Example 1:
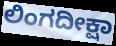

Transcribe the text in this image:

ಲಿಂಗದೀಕ್ಷಾ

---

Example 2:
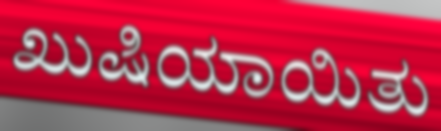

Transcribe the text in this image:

ಖುಷಿಯಾಯಿತು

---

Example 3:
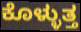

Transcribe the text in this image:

ಕೊಳ್ಳುತ್ತ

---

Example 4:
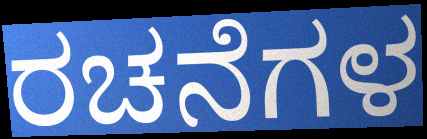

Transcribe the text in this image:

ರಚನೆಗಳ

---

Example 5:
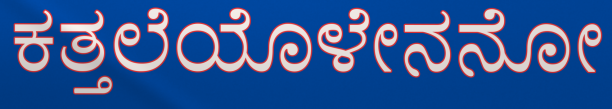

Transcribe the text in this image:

ಕತ್ತಲೆಯೊಳೇನನೋ